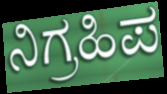
ನಿಗ್ರಹಿಪ